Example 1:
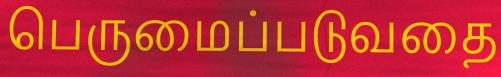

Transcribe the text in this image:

பெருமைப்படுவதை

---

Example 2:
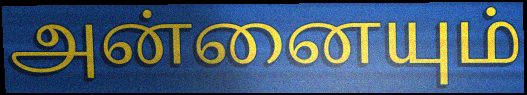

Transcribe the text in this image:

அன்னையும்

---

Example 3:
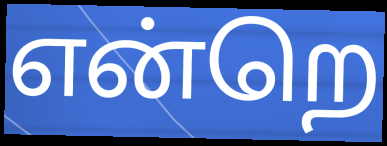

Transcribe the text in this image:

என்றெ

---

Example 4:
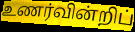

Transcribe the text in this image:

உணர்வின்றிப்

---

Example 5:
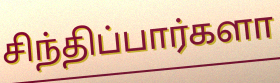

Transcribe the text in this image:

சிந்திப்பார்களா